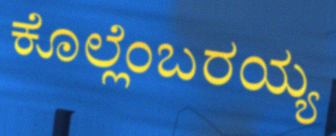
ಕೊಲ್ಲೆಂಬರಯ್ಯ